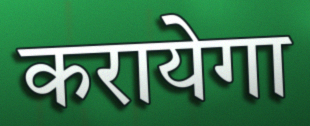
करायेगा